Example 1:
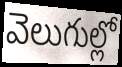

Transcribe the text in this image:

వెలుగుల్లో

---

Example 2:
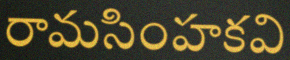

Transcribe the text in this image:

రామసింహకవి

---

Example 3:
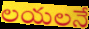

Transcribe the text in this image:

లయలనే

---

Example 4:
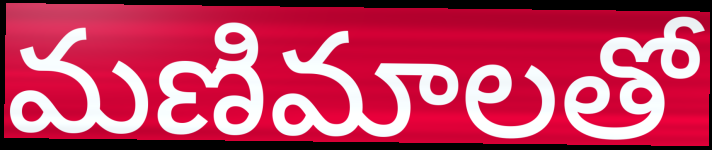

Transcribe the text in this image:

మణిమాలతో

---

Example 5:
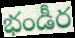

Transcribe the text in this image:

భండీర